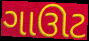
ગાઊટ